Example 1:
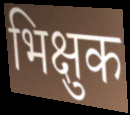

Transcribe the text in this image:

भिक्षुक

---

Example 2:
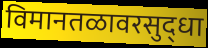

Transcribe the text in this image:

विमानतळावरसुद्धा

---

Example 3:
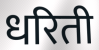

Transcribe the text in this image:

धरिती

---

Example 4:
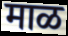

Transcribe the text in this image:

माळ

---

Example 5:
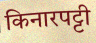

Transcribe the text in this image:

किनारपट्टी